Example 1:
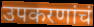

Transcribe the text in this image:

उपकरणांचं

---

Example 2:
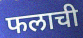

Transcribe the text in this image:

फलाची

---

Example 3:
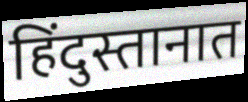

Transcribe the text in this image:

हिंदुस्तानात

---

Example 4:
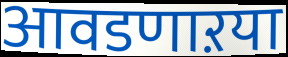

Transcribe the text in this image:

आवडणाऱया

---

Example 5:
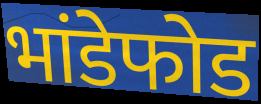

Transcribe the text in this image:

भांडेफोड